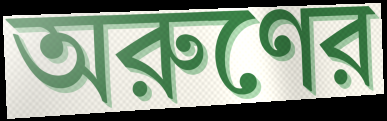
অরুণের